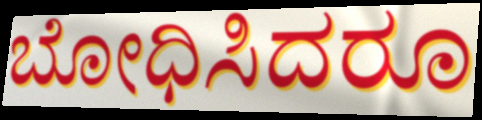
ಬೋಧಿಸಿದರೂ